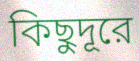
কিছুদূরে